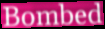
Bombed